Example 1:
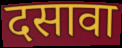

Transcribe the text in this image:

दसावा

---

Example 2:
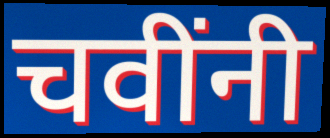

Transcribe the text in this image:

चवींनी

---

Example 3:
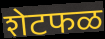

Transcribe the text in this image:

शेटफळ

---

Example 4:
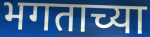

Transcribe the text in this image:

भगताच्या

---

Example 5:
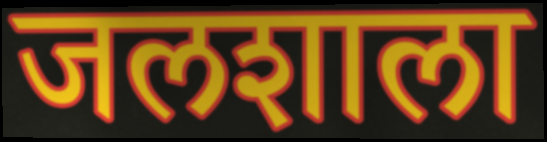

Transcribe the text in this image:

जलशाला